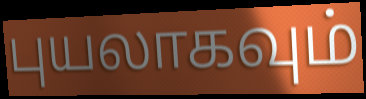
புயலாகவும்